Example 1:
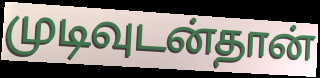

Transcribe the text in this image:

முடிவுடன்தான்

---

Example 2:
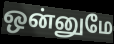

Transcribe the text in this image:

ஒன்னுமே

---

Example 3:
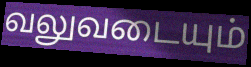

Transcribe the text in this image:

வலுவடையும்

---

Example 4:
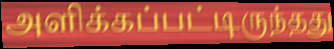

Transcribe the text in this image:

அளிக்கப்பட்டிருந்தது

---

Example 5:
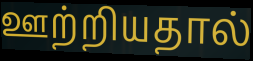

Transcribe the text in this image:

ஊற்றியதால்